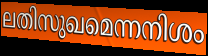
ലതിസുഖമെന്നനിശം